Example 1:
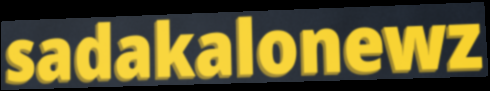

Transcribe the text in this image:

sadakalonewz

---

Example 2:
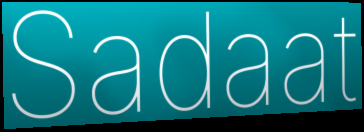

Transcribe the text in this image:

Sadaat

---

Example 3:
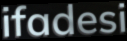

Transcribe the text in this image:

ifadesi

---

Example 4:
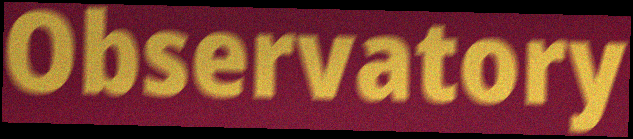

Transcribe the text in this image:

Observatory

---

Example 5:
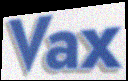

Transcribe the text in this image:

Vax